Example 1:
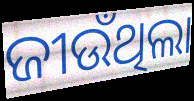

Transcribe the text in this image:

ଜୀଉଁଥିଲା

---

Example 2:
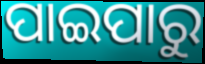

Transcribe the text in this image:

ପାଇପାରୁ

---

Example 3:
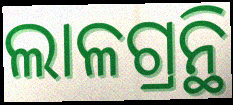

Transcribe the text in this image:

ଲାଳଗ୍ରନ୍ଥି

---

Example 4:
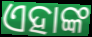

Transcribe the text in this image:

ଏହାଙ୍କ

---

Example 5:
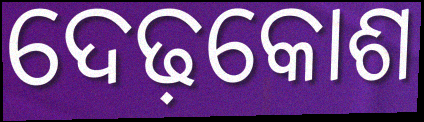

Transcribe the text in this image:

ଦେଢ଼କୋଶ